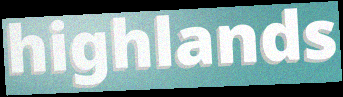
highlands